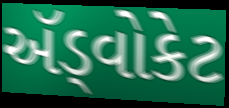
ઍડ્વોકેટ